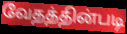
வேதத்தின்படி